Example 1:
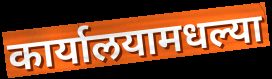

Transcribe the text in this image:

कार्यालयामधल्या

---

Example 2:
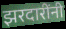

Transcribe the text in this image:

झरदारींनी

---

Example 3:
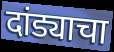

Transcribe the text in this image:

दांड्याचा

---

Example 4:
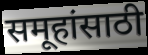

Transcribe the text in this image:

समूहांसाठी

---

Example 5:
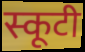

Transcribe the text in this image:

स्कूटी